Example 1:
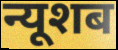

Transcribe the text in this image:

न्यूशब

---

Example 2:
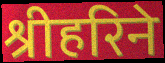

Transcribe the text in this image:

श्रीहरिने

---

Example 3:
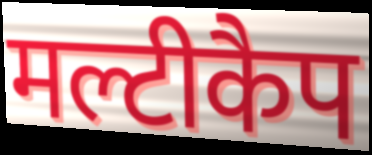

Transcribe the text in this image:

मल्‍टीकैप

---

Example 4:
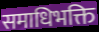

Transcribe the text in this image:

समाधिभक्ति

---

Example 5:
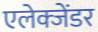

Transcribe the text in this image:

एलेक्‍जेंडर